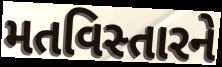
મતવિસ્તારને